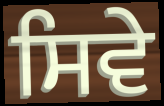
ਸਿਵੇ